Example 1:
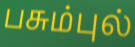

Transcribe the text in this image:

பசும்புல்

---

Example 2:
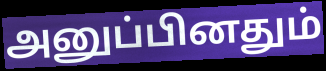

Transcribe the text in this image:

அனுப்பினதும்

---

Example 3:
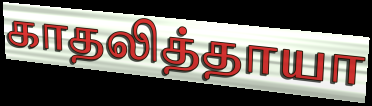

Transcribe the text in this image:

காதலித்தாயா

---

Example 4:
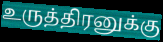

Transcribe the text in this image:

உருத்திரனுக்கு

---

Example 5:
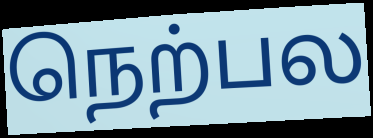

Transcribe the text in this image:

நெற்பல